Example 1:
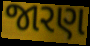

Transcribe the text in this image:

જારણ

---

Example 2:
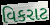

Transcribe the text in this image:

વિકરાટ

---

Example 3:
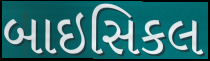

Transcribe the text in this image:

બાઇસિકલ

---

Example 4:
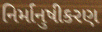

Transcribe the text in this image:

નિર્માનુષીકરણ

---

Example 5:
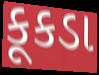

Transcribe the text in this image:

કૂકડા